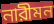
নারীমন